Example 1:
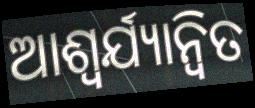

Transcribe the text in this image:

ଆଶ୍ବର୍ଯ୍ୟାନ୍ବିତ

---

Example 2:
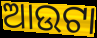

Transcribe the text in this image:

ଆଉଟା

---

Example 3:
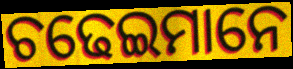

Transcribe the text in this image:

ଚଢେଇମାନେ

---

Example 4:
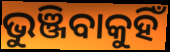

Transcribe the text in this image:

ଭୁଞ୍ଜିବାକୁହିଁ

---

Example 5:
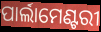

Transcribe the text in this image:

ପାର୍ଲାମେଣ୍ଟରୀ